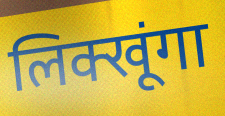
लिक्खूंगा